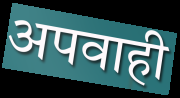
अपवाही